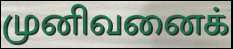
முனிவனைக்